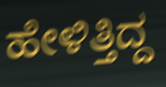
ಹೇಳಿತ್ತಿದ್ದ